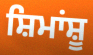
ਸ਼ਿਮਾਂਸ਼ੂ